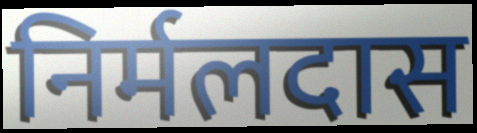
निर्मलदास